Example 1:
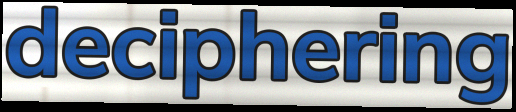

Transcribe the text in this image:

deciphering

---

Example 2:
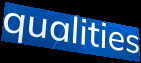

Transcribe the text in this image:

qualities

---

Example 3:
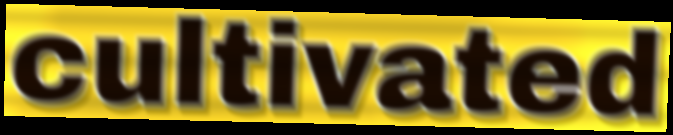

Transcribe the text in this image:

cultivated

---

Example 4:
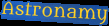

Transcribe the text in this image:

Astronamy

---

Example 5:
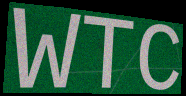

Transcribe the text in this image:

WTC